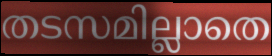
തടസമില്ലാതെ